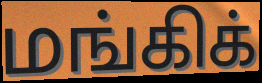
மங்கிக்